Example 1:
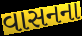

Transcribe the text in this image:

વાસનના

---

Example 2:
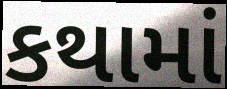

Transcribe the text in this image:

કથામાં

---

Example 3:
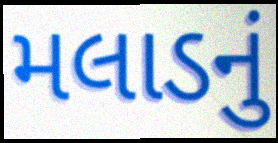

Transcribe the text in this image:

મલાડનું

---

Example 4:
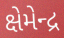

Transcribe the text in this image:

ક્ષેમેન્દ્ર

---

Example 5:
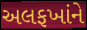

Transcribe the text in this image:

અલફખાંને